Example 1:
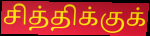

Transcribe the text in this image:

சித்திக்குக்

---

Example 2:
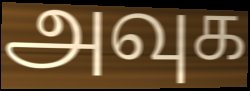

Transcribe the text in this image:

அவுக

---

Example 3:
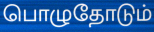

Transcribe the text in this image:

பொழுதோடும்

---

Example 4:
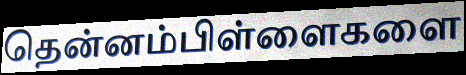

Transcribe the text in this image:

தென்னம்பிள்ளைகளை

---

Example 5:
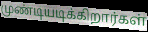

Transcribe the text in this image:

முண்டியடிக்கிறார்கள்